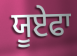
ਯੂਏਫਾ